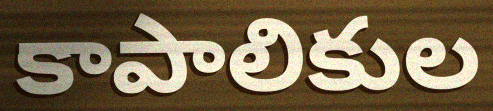
కాపాలికుల